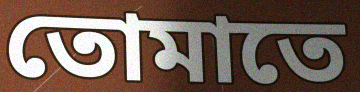
তোমাতে